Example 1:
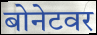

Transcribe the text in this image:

बोनेटवर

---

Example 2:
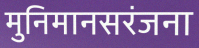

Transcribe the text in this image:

मुनिमानसरंजना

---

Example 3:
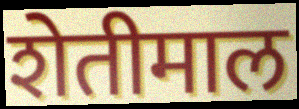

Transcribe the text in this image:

शेतीमाल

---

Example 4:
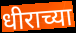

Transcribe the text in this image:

धीराच्या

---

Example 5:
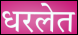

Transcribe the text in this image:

धरलेत